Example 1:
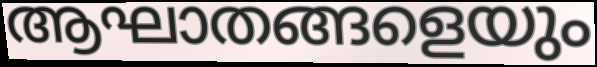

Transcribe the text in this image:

ആഘാതങ്ങളെയും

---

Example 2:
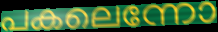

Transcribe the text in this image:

പകലെന്നോ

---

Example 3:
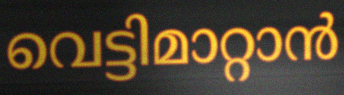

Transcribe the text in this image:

വെട്ടിമാറ്റാൻ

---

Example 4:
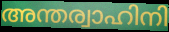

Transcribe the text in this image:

അന്തര്വാഹിനി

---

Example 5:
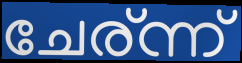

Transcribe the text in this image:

ചേര്ന്ന്